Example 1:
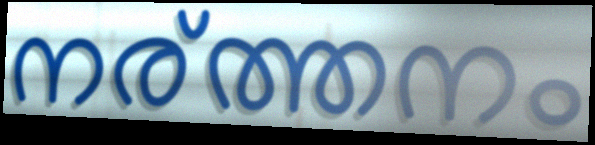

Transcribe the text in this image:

നര്ത്തനം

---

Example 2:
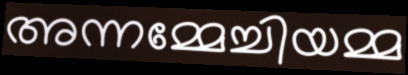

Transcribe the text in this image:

അന്നമ്മേച്ചിയമ്മ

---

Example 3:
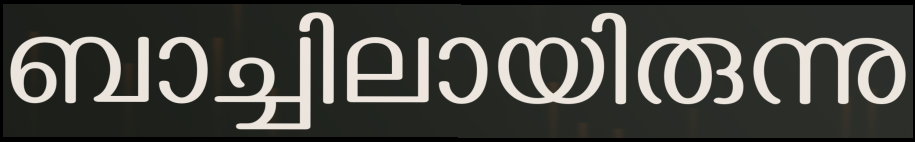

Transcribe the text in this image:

ബാച്ചിലായിരുന്നു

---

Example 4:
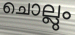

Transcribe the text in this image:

ചൊല്ലും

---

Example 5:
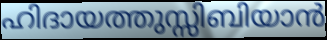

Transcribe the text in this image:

ഹിദായത്തുസ്സിബിയാൻ